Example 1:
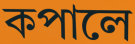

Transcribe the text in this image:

কপালে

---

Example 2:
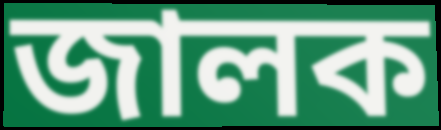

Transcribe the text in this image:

জালক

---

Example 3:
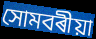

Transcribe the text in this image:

সোমবৰীয়া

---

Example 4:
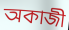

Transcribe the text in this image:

অকাজী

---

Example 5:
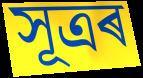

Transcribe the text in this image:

সূত্ৰৰ